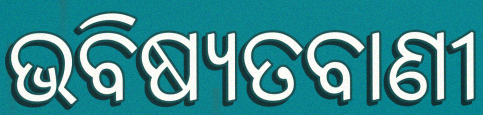
ଭବିଷ୍ୟତବାଣୀ